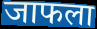
जाफला